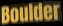
Boulder